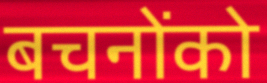
बचनोंको